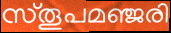
സ്തൂപമഞ്ജരി